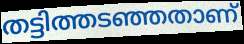
തട്ടിത്തടഞ്ഞതാണ്